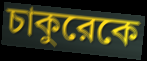
চাকুরেকে